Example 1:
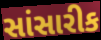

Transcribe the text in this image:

સાંસારીક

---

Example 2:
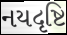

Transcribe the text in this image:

નયદૃષ્ટિ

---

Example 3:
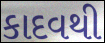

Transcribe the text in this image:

કાદવથી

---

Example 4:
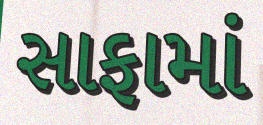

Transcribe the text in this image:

સાફામાં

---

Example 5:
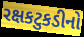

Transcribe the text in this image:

રક્ષકટુકડીનો